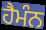
ਹੈਮੰਨ